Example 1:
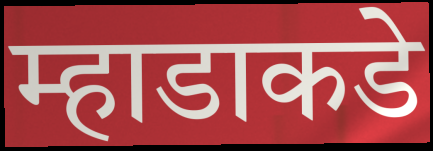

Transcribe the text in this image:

म्हाडाकडे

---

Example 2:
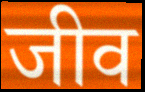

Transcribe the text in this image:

जीव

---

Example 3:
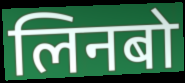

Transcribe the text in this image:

लिनबो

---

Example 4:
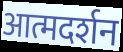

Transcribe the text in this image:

आत्मदर्शन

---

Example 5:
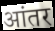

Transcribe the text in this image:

आंतर